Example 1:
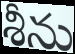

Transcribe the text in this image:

శీను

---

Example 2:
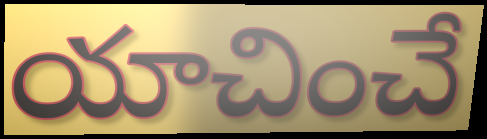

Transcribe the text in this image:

యాచించే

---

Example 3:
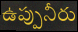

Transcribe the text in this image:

ఉప్పునీరు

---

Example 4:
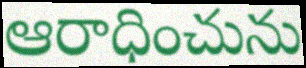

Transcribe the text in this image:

ఆరాధించును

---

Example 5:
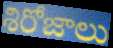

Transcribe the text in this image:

శిరోజాలు